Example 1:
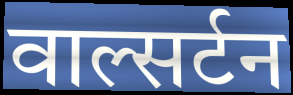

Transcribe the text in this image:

वाल्सर्टन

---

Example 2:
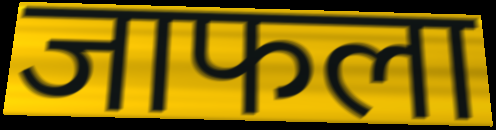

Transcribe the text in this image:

जाफला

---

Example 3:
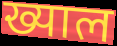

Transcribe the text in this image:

ख्याल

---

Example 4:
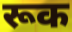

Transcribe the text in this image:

रूक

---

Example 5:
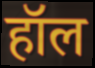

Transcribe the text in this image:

हॉल